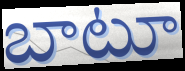
బాటూ